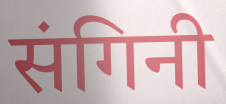
संगिनी